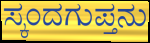
ಸ್ಕಂದಗುಪ್ತನು